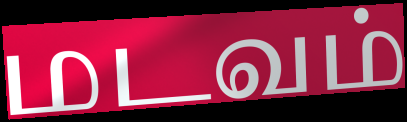
மடவம்